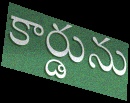
కార్డును